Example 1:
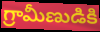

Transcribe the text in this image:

గ్రామీణుడికి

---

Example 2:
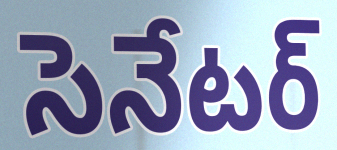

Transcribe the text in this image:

సెనేటర్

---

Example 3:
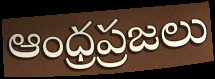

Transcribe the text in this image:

ఆంధ్రప్రజలు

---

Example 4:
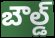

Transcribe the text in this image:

బౌల్డ్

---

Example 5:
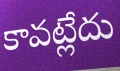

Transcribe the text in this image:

కావట్లేదు